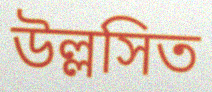
উল্লসিত